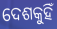
ଦେଶକୁହିଁ